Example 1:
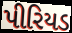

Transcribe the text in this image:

પીરિયડ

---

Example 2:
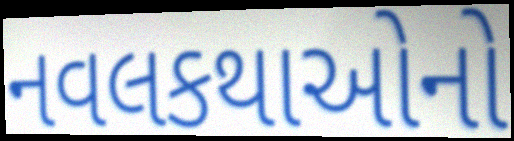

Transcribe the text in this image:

નવલકથાઓનો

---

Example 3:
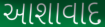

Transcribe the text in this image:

આશાવાદ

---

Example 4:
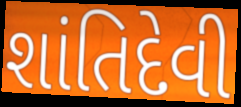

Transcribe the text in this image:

શાંતિદેવી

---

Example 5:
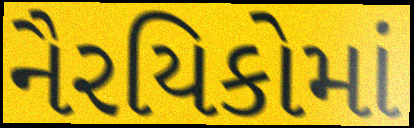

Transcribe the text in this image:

નૈરયિકોમાં